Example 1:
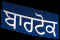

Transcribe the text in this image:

ਬਾਰਟੋਕ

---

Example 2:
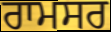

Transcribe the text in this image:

ਰਾਮਸਰ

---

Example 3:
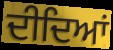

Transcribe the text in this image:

ਦੀਦਿਆਂ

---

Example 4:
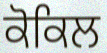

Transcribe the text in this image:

ਕੋਕਿਲ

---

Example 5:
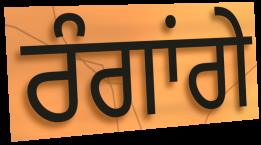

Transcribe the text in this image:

ਰੰਗਾਂਗੇ